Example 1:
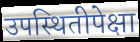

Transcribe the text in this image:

उपस्थितीपेक्षा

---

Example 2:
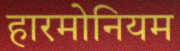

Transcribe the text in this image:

हारमोनियम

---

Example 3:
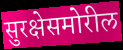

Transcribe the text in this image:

सुरक्षेसमोरील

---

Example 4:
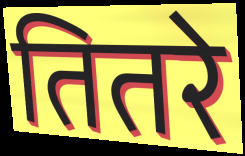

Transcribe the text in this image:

तितरे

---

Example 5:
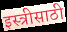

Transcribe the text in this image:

इस्त्रीसाठी